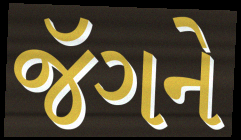
જૅગને